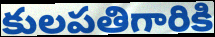
కులపతిగారికి